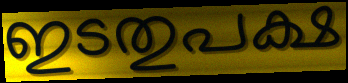
ഇടതുപക്ഷ